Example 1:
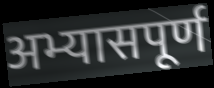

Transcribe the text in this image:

अभ्यासपूर्ण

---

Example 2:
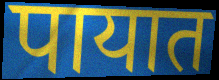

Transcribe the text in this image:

पायात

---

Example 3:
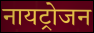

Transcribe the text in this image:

नायट्रोजन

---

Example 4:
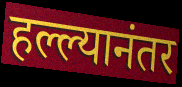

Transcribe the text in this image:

हल्ल्यानंतर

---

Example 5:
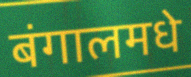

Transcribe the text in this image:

बंगालमधे